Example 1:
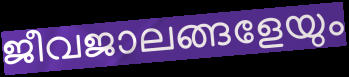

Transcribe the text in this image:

ജീവജാലങ്ങളേയും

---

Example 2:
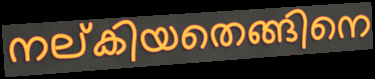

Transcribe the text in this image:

നല്കിയതെങ്ങിനെ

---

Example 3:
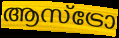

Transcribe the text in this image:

ആസ്ട്രോ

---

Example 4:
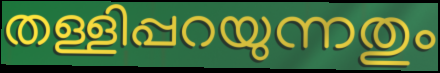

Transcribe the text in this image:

തള്ളിപ്പറയുന്നതും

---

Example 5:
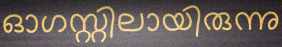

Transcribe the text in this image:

ഓഗസ്റ്റിലായിരുന്നു